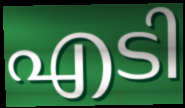
എടി